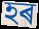
হৰ